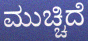
ಮುಚ್ಚಿದೆ